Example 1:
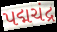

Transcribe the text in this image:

પદ્મચંદ્ર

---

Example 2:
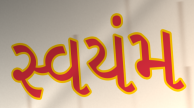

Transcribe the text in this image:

સ્વયંમ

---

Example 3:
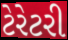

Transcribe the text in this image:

ટેરેટરી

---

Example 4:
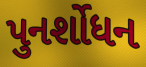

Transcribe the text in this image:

પુનર્શોધન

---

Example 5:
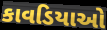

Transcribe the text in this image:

કાવડિયાઓ